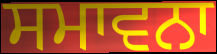
ਸਮਾਵਨਾ